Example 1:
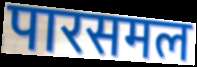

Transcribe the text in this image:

पारसमल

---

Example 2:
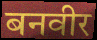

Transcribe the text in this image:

बनवीर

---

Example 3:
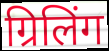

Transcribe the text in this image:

ग्रिलिंग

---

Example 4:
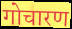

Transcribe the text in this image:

गोचारण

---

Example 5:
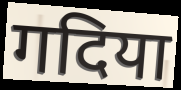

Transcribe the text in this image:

गदिया